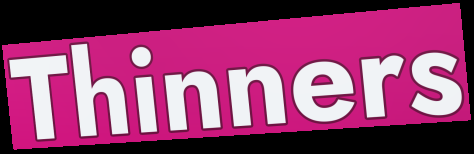
Thinners